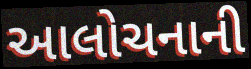
આલોચનાની